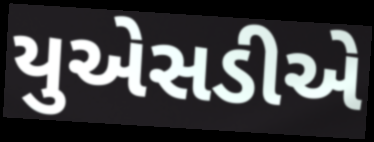
યુએસડીએ